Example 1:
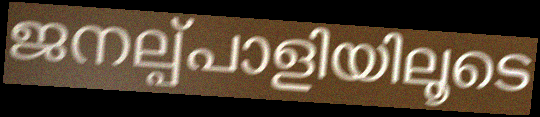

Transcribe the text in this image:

ജനല്പ്പാളിയിലൂടെ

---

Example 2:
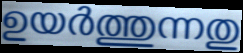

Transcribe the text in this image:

ഉയർത്തുന്നതു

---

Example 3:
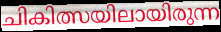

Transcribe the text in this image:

ചികിത്സയിലായിരുന്ന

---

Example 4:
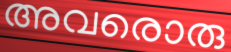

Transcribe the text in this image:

അവരൊരു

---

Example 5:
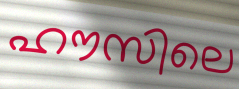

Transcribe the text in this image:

ഹൗസിലെ